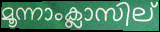
മൂന്നാംക്ലാസില്